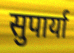
सुपार्या